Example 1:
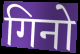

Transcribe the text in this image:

गिनो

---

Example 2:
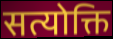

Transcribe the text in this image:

सत्योक्ति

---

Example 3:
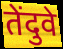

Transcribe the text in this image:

तेंदुवे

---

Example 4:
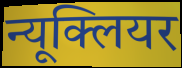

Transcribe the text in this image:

न्यूक्लियर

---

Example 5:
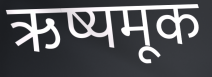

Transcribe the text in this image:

ऋष्यमूक